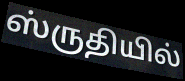
ஸ்ருதியில்